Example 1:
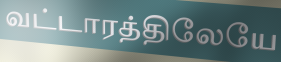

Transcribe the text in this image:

வட்டாரத்திலேயே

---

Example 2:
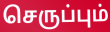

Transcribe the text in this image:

செருப்பும்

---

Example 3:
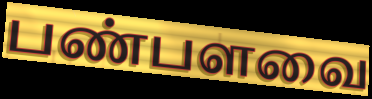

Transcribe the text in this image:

பண்பளவை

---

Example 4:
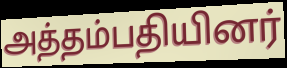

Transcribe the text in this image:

அத்தம்பதியினர்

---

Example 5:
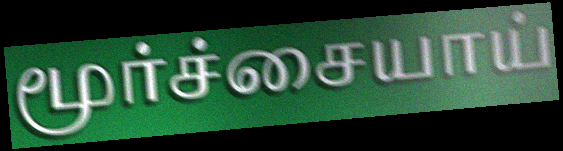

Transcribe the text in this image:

மூர்ச்சையாய்